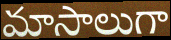
మాసాలుగా